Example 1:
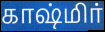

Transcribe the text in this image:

காஷ்மிர்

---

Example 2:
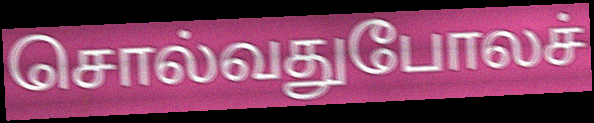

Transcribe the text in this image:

சொல்வதுபோலச்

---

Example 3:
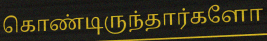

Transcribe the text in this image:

கொண்டிருந்தார்களோ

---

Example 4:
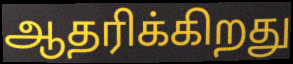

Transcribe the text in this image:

ஆதரிக்கிறது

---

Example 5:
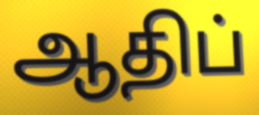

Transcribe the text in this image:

ஆதிப்